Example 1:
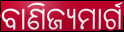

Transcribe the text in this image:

ବାଣିଜ୍ୟମାର୍ଗ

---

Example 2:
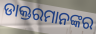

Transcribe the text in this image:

ଡାକ୍ତରମାନଙ୍କର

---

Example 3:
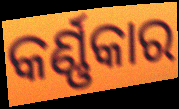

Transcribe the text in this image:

କର୍ଣ୍ଣକାର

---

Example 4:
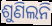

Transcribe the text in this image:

ଶୁଣିଲନି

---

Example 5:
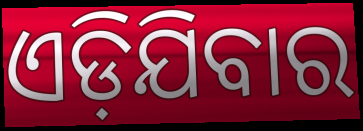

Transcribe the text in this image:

ଏଡ଼ିଯିବାର